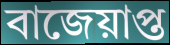
বাজেয়াপ্ত